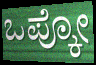
ಒಪ್ಕೋ